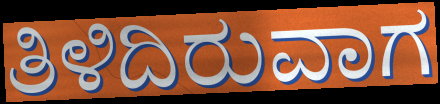
ತಿಳಿದಿರುವಾಗ